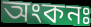
অংকনঃ